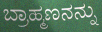
ಬ್ರಾಹ್ಮಣನನ್ನು